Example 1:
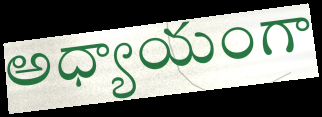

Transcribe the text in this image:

అధ్యాయంగా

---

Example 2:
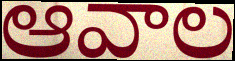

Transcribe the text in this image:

ఆవాల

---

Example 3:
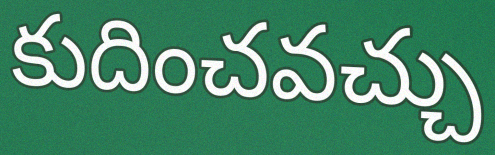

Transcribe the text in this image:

కుదించవచ్చు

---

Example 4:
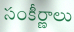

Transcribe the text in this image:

సంకీర్ణాలు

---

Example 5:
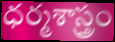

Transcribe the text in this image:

ధర్మశాస్త్రం